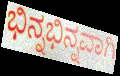
ಭಿನ್ನಭಿನ್ನವಾಗಿ